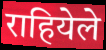
राहियेले